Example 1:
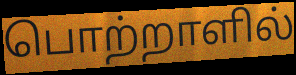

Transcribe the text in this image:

பொற்றாளில்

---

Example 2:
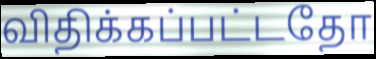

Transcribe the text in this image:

விதிக்கப்பட்டதோ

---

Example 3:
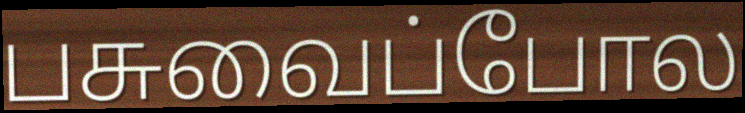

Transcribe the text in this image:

பசுவைப்போல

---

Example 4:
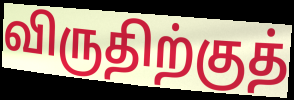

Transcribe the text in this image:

விருதிற்குத்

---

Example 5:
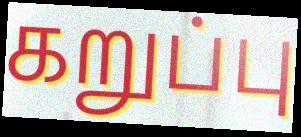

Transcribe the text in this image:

கறுப்பு